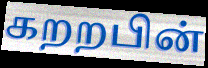
கறறபின்